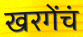
खरगेंचं